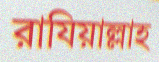
রাযিয়াল্লাহ